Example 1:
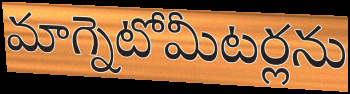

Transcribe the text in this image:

మాగ్నెటోమీటర్లను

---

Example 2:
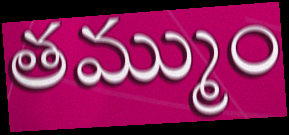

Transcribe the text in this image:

తమ్ముం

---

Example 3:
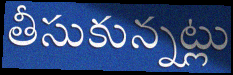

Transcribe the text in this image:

తీసుకున్నట్లు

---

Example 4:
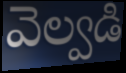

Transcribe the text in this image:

వెల్వడి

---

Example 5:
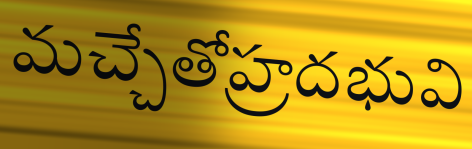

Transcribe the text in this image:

మచ్చేతోహ్రదభువి